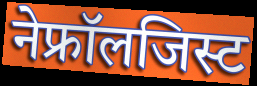
नेफ्रॉलजिस्ट